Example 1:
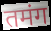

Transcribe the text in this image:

तमंग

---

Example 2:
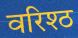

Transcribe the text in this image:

वरिश्ठ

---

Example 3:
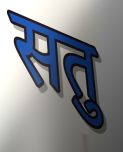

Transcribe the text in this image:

सतु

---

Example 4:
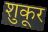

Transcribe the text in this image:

शुकूर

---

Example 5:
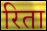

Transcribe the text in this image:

रिता